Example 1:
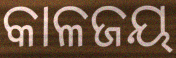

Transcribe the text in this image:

କାଳଜୟ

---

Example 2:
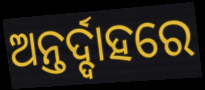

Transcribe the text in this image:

ଅନ୍ତର୍ଦ୍ଦାହରେ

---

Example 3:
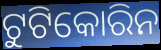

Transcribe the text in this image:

ଟୁଟିକୋରିନ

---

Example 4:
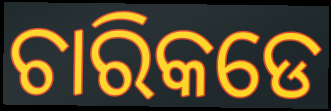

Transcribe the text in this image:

ଚାରିକଡେ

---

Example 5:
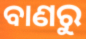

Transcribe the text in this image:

ବାଣରୁ